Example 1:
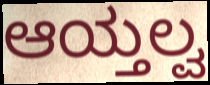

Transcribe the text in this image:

ಆಯ್ತಲ್ವ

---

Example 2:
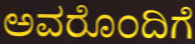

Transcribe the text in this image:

ಅವರೊಂದಿಗೆ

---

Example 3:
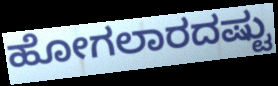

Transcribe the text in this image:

ಹೋಗಲಾರದಷ್ಟು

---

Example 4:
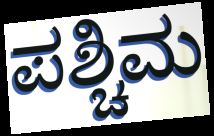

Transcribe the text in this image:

ಪಶ್ಚಿಮ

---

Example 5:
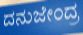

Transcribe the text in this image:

ದನುಜೇಂದ್ರ